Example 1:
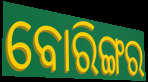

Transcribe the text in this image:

ବୋରିଙ୍ଗର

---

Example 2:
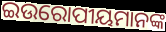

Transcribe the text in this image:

ଇଉରୋପୀୟମାନଙ୍କ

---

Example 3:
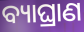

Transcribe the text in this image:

ବ୍ୟାଘ୍ରାଣ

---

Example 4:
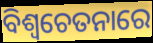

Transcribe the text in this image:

ବିଶ୍ୱଚେତନାରେ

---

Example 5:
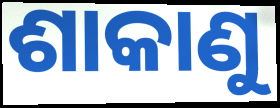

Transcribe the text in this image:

ଶାକାଣୁ